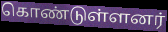
கொண்டுள்ளனர்